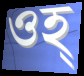
ওহ্